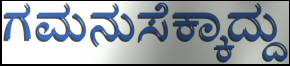
ಗಮನುಸೆಕ್ಕಾದ್ದು